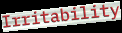
Irritability